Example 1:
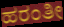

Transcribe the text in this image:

ಹರಂತೀ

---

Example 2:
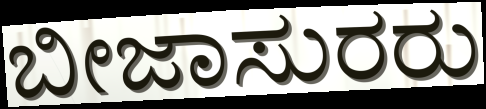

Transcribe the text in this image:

ಬೀಜಾಸುರರು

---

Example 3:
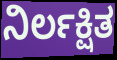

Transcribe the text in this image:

ನಿರ್ಲಕ್ಷಿತ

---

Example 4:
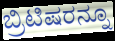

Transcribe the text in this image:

ಬ್ರಿಟಿಷರನ್ನೂ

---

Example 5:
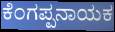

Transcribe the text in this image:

ಕೆಂಗಪ್ಪನಾಯಕ